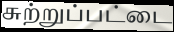
சுற்றுப்பட்டை